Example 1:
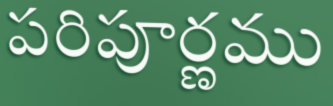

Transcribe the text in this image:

పరిపూర్ణము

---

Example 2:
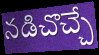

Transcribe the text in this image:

నడిచొచ్చే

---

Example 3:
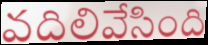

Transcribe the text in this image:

వదిలివేసింది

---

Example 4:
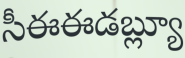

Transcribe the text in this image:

సీఈఈడబ్ల్యూ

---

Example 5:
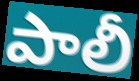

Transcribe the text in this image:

పాలీ